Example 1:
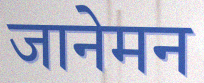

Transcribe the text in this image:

जानेमन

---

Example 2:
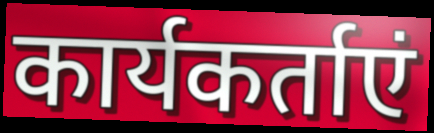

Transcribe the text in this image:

कार्यकर्ताएं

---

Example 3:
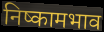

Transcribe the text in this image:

निष्कामभाव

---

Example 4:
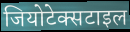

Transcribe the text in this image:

जियोटेक्सटाइल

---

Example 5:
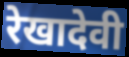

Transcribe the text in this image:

रेखादेवी